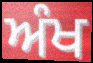
ਅੰਖ